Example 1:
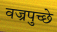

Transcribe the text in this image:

वज्रपुच्छे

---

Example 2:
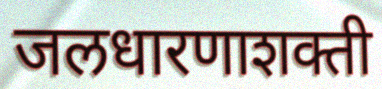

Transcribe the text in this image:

जलधारणाशक्ती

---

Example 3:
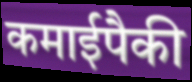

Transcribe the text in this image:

कमाईपैकी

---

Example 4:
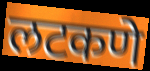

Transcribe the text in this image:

लटकणे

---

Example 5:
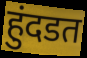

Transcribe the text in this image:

हुंदडत